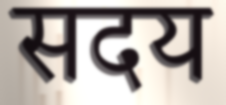
सदय